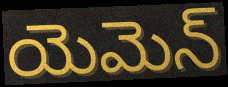
యెమెన్